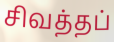
சிவத்தப்